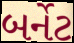
બર્નેટ